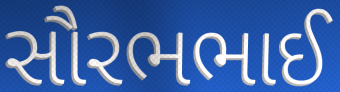
સૌરભભાઈ